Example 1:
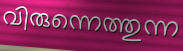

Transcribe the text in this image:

വിരുന്നെത്തുന്ന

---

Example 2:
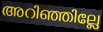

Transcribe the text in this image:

അറിഞ്ഞില്ലേ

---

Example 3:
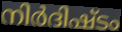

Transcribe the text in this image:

നിർദിഷ്ടം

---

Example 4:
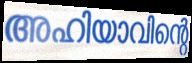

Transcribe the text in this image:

അഹിയാവിന്റെ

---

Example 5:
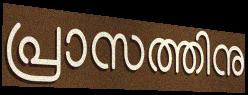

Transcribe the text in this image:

പ്രാസത്തിനു